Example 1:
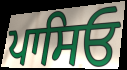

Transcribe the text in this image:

ਪਾਸਿਓ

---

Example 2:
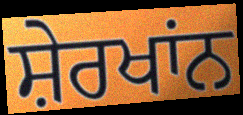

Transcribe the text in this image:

ਸ਼ੇਰਖਾਂਨ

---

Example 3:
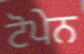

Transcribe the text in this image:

ਟੋਪੇਨ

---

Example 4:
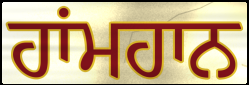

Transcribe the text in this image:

ਹਾਂਮਹਾਨ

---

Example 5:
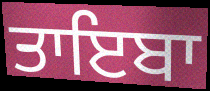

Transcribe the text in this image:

ਤਾਇਬਾ